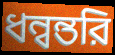
ধন্বন্তরি